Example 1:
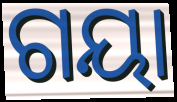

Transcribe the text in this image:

ଗୟା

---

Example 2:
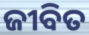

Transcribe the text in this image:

ଜୀବିତ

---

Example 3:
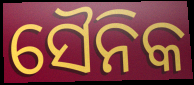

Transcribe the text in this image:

ସୈନିକ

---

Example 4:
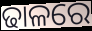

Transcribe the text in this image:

ଢାଳରେ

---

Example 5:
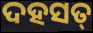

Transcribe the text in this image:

ଦହସତ୍